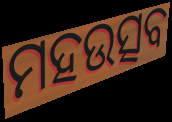
ମହଉତ୍ସବ